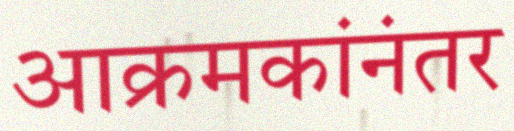
आक्रमकांनंतर